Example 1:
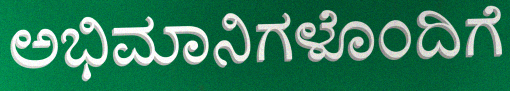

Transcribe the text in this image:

ಅಭಿಮಾನಿಗಳೊಂದಿಗೆ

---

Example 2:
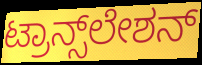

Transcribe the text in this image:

ಟ್ರಾನ್ಸ್‌ಲೇಶನ್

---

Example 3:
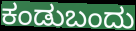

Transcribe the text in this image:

ಕಂಡುಬಂದು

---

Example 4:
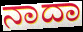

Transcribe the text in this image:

ನಾದಾ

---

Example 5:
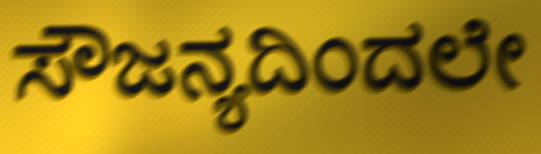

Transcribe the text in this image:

ಸೌಜನ್ಯದಿಂದಲೇ